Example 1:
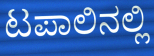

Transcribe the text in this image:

ಟಪಾಲಿನಲ್ಲಿ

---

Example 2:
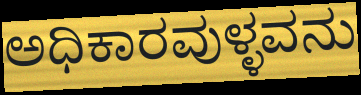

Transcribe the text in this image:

ಅಧಿಕಾರವುಳ್ಳವನು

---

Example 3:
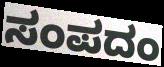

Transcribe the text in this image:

ಸಂಪದಂ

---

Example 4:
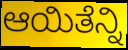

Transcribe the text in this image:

ಆಯಿತೆನ್ನಿ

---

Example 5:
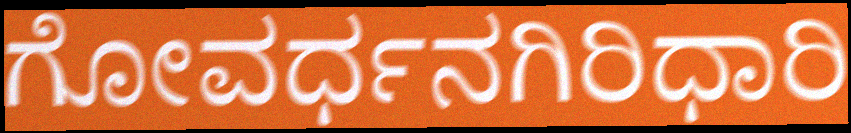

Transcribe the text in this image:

ಗೋವರ್ಧನಗಿರಿಧಾರಿ